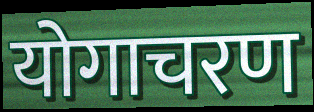
योगाचरण